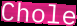
Chole